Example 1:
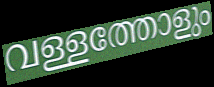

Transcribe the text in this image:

വള്ളത്തോളും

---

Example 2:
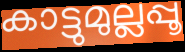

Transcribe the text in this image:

കാട്ടുമുല്ലപ്പൂ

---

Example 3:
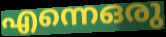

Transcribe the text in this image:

എന്നെഒരു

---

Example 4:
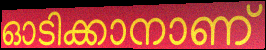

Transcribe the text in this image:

ഓടിക്കാനാണ്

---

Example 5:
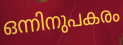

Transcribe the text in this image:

ഒന്നിനുപകരം